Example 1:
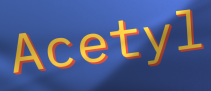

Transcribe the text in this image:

Acetyl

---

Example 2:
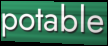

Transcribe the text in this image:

potable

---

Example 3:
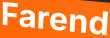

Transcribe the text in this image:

Farend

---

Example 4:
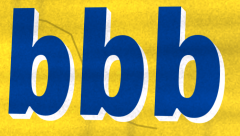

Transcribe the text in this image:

bbb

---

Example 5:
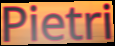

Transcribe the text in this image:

Pietri